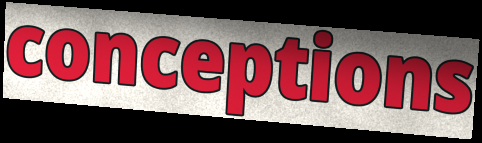
conceptions